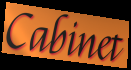
Cabinet